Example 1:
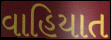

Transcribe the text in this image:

વાહિયાત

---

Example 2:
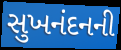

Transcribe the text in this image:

સુખનંદનની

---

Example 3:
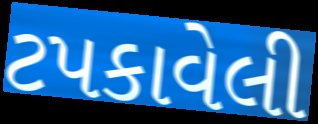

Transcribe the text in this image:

ટપકાવેલી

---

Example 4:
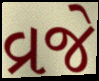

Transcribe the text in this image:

વ્રજે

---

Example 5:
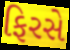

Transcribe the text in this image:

ફિરસે